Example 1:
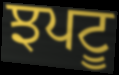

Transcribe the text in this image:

ਝਪਟੂ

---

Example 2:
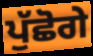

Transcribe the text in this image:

ਪੁੱਛੋਗੇ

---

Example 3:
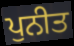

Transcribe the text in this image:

ਪੁਨੀਤ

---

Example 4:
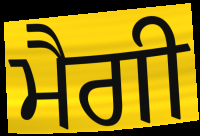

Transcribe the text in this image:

ਮੈਗੀ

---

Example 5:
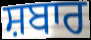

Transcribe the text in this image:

ਸ਼ਬਾਰ